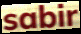
sabir